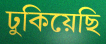
ঢুকিয়েছি